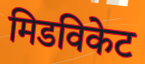
मिडविकेट